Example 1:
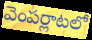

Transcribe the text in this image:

వెంపర్లాటలో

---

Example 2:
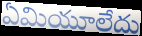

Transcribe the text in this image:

ఏమియూలేదు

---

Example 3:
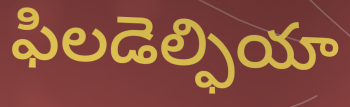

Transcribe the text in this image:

ఫిలడెల్ఫియా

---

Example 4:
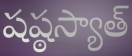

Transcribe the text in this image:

షష్ఠస్యాత్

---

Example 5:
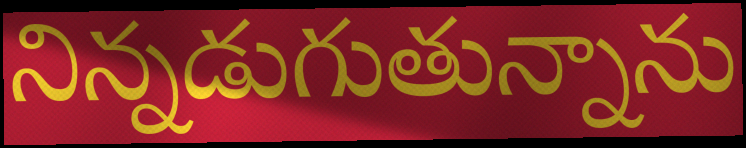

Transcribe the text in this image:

నిన్నడుగుతున్నాను